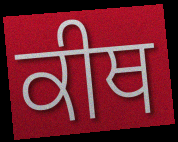
ਕੀਥ